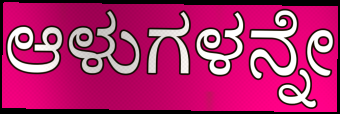
ಆಳುಗಳನ್ನೇ